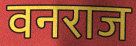
वनराज